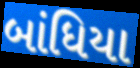
બાંધિયા